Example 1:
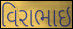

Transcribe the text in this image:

વિરાભાઇ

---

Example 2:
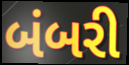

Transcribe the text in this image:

બંબરી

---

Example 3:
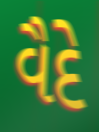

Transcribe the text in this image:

વૈદે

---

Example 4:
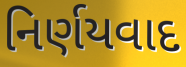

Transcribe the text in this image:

નિર્ણયવાદ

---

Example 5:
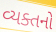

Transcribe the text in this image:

વ્યક્તનો